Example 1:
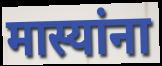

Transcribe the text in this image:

मास्यांना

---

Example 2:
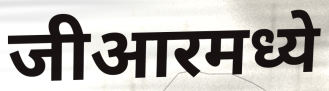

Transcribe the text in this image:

जीआरमध्ये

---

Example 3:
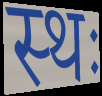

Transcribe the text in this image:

स्थः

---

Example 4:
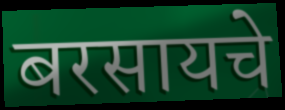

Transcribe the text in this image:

बरसायचे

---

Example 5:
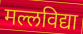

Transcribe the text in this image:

मल्लविद्या